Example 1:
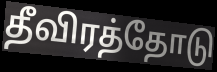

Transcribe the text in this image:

தீவிரத்தோடு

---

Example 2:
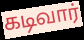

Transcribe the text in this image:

கடிவார்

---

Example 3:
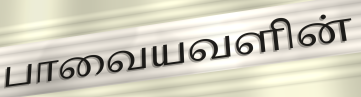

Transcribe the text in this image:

பாவையவளின்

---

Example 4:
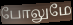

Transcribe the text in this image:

போலுமே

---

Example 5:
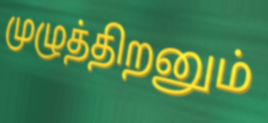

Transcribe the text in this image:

முழுத்திறனும்